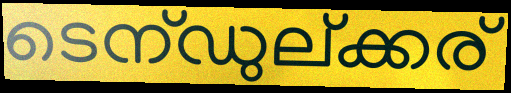
ടെന്ഡുല്ക്കര്